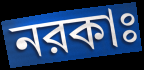
নরকাঃ